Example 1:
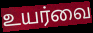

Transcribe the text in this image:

உயர்வை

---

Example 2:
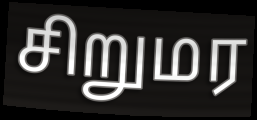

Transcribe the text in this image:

சிறுமர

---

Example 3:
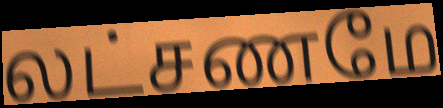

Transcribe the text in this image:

லட்சணமே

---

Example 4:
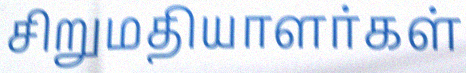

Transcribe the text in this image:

சிறுமதியாளர்கள்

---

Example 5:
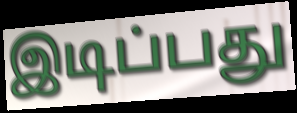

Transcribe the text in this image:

இடிப்பது